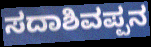
ಸದಾಶಿವಪ್ಪನ